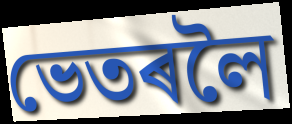
ভেতৰলৈ